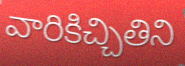
వారికిచ్చితిని